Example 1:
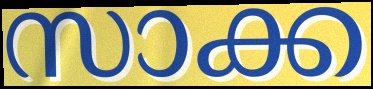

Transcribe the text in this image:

സാക്ക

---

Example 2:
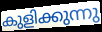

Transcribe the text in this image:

കുളിക്കുന്നു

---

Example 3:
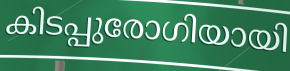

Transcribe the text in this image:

കിടപ്പുരോഗിയായി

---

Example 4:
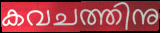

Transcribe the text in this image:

കവചത്തിനു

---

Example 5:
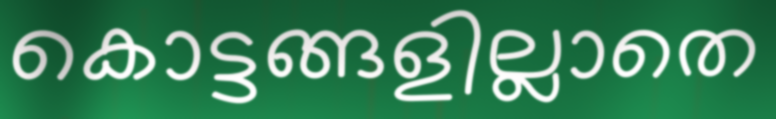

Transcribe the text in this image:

കൊട്ടങ്ങളില്ലാതെ